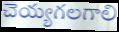
చెయ్యగలగాలి